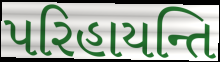
પરિહાયન્તિ